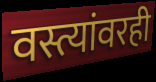
वस्त्यांवरही